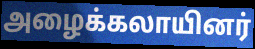
அழைக்கலாயினர்